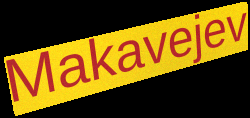
Makavejev